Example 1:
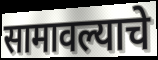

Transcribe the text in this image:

सामावल्याचे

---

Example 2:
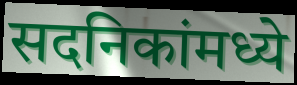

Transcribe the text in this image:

सदनिकांमध्ये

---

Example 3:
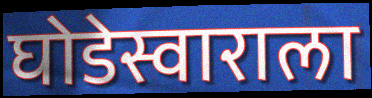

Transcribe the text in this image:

घोडेस्वाराला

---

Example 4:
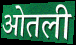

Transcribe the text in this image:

ओतली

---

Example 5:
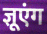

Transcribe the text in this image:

ज्ञूएंग